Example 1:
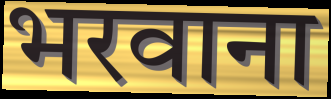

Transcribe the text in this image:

भरवाना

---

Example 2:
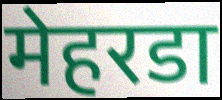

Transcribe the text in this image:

मेहरडा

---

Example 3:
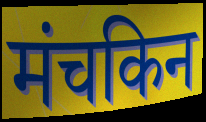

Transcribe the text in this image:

मंचकिन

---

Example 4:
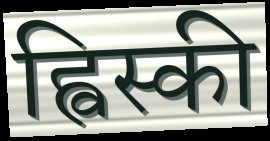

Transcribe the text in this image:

ह्विस्की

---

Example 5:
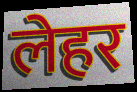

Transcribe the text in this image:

लेहर